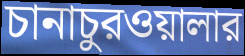
চানাচুরওয়ালার